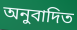
অনুবাদিত